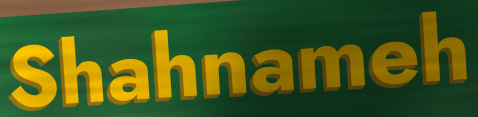
Shahnameh